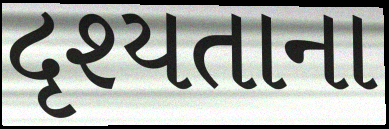
દૃશ્યતાના